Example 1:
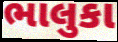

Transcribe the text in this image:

ભાલુકા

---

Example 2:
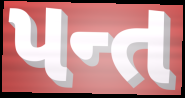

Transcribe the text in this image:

પન્ત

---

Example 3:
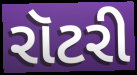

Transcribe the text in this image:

રૉટરી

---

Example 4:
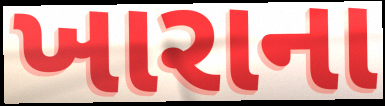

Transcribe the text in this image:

ખારાના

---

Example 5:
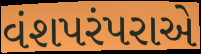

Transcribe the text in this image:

વંશપરંપરાએ